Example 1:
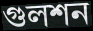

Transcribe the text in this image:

গুলশন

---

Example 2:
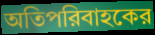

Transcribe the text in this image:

অতিপরিবাহকের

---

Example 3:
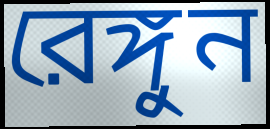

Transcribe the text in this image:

রেঙ্গুন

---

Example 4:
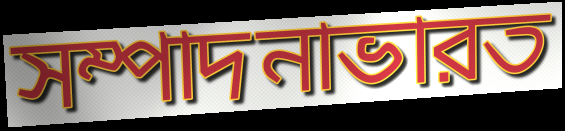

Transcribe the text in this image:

সম্পাদনাভারত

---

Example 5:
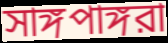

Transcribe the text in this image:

সাঙ্গপাঙ্গরা